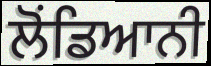
ਲੋਂਡਿਆਨੀ